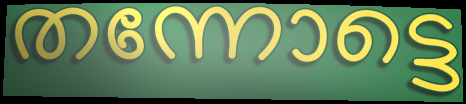
തന്നോട്ടെ